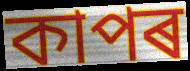
কাপৰ